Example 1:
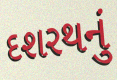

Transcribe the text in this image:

દશરથનું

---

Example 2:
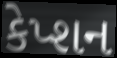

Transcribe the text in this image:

કેપ્શન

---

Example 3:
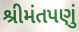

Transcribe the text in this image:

શ્રીમંતપણું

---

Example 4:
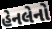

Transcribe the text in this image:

હેનલેનો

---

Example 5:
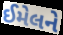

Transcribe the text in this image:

ઈમેલને